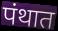
पंथात